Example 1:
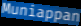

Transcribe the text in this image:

Muniappan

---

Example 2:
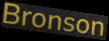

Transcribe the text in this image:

Bronson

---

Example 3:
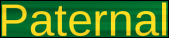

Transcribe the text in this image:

Paternal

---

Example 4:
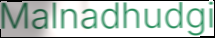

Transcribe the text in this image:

Malnadhudgi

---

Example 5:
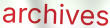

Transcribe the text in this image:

archives